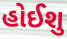
હોઈશુ